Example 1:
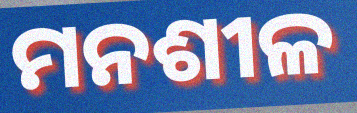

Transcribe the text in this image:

ମନଶୀଳ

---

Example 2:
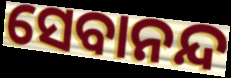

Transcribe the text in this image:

ସେବାନନ୍ଦ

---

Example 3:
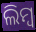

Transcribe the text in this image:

ଲିମ୍ବ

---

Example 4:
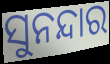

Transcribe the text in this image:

ସୁନନ୍ଦାର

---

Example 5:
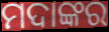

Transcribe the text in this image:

ମଦାଙ୍କର